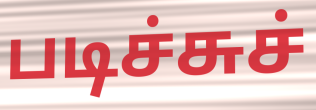
படிச்சுச்